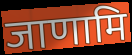
जाणामि